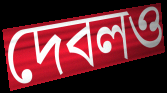
দেবলও